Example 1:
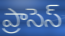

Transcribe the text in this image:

ప్రాసెస్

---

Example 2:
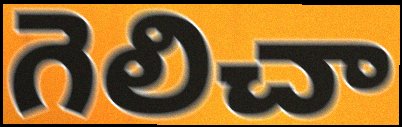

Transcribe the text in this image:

గెలిచా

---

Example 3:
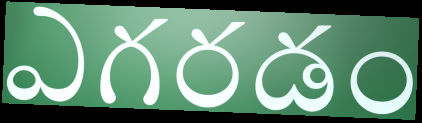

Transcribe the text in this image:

ఎగరడం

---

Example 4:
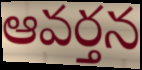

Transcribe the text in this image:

ఆవర్తన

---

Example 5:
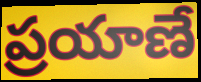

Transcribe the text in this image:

ప్రయాణే